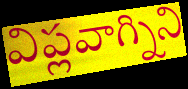
విప్లవాగ్నిని